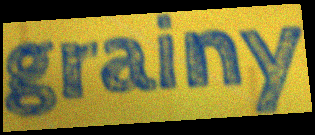
grainy